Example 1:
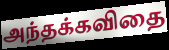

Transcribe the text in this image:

அந்தக்கவிதை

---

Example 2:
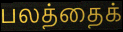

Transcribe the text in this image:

பலத்தைக்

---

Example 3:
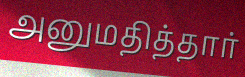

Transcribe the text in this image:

அனுமதித்தார்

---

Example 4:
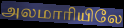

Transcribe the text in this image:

அலமாரியிலே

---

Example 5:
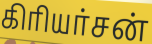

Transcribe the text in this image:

கிரியர்சன்